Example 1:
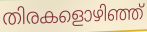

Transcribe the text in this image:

തിരകളൊഴിഞ്ഞ്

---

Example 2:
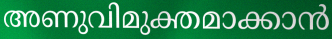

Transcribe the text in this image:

അണുവിമുക്തമാക്കാൻ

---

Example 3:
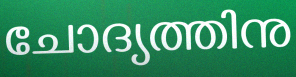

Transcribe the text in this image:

ചോദ്യത്തിനു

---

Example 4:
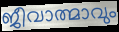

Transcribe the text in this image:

ജീവാത്മാവും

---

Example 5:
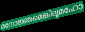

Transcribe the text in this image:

മനോജ്ഞമെങ്കിലുമഹോ